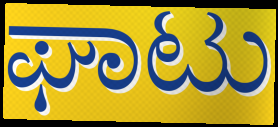
ಘಾಟು